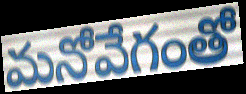
మనోవేగంతో